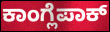
ಕಾಂಗ್ಲೆಪಾಕ್